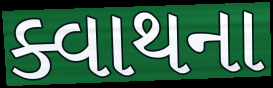
ક્વાથના